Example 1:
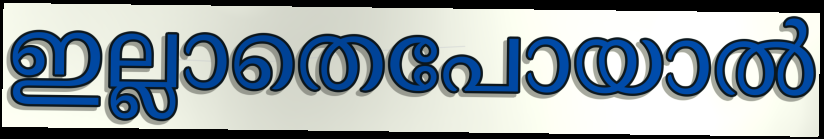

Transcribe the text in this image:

ഇല്ലാതെപോയാൽ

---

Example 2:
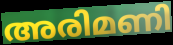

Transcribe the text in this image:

അരിമണി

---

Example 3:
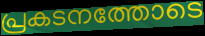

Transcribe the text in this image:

പ്രകടനത്തോടെ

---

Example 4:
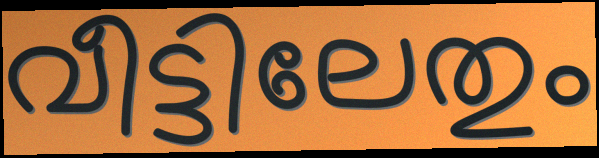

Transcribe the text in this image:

വീട്ടിലേതും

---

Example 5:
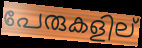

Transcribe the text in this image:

പേരുകളില്